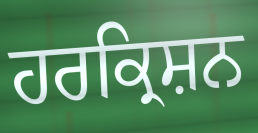
ਹਰਕ੍ਰਿਸ਼ਨ